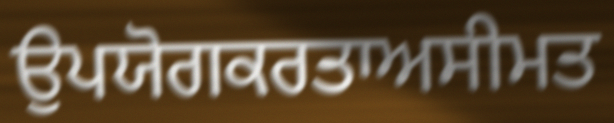
ਉਪਯੋਗਕਰਤਾਅਸੀਮਤ